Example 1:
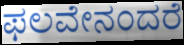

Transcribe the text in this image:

ಫಲವೇನಂದರೆ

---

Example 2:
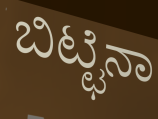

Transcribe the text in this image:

ಬಿಟ್ಟೆನಾ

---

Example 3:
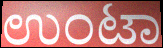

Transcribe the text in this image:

ಉಂಟಾ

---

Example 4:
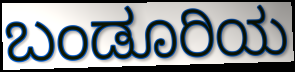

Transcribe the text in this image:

ಬಂಡೂರಿಯ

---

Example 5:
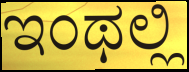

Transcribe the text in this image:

ಇಂಥಲ್ಲಿ